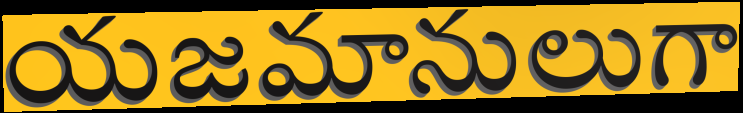
యజమానులుగా